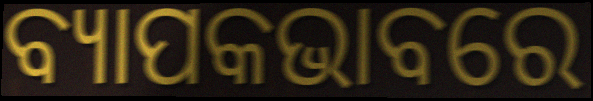
ବ୍ୟାପକଭାବରେ